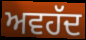
ਅਵਹੱਦ